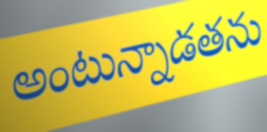
అంటున్నాడతను